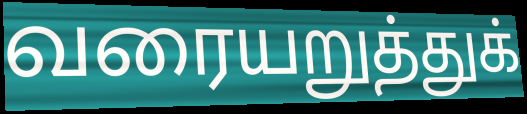
வரையறுத்துக்